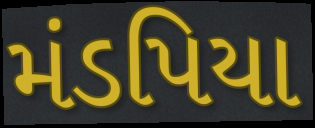
મંડપિયા